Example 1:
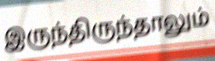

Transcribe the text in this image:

இருந்திருந்தாலும்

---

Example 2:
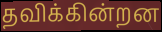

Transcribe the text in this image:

தவிக்கின்றன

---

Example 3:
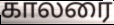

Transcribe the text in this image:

காலரை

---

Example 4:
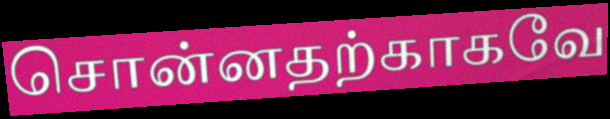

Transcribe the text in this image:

சொன்னதற்காகவே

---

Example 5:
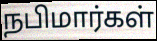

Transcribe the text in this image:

நபிமார்கள்